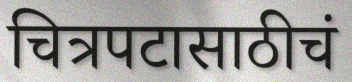
चित्रपटासाठीचं